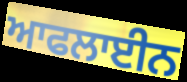
ਆਫਲਾਈਨ